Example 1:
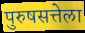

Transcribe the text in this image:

पुरुषसत्तेला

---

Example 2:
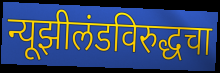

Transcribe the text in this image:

न्यूझीलंडविरुद्धचा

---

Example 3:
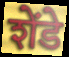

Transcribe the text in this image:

शेंडे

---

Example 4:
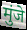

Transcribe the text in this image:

मुंजे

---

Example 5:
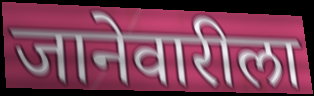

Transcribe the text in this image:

जानेवारीला